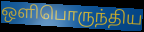
ஒளிபொருந்திய